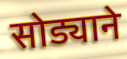
सोड्याने